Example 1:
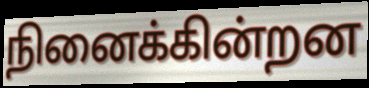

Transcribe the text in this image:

நினைக்கின்றன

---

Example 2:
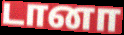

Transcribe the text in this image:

டானா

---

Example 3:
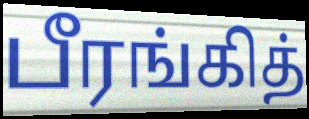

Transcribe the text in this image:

பீரங்கித்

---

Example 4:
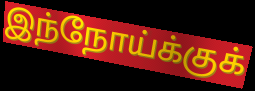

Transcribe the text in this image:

இந்நோய்க்குக்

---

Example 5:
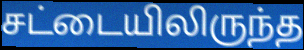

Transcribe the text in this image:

சட்டையிலிருந்த